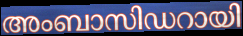
അംബാസിഡറായി